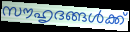
സൗഹൃദങ്ങൾക്ക്